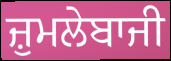
ਜ਼ੁਮਲੇਬਾਜੀ